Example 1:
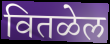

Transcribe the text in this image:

वितळेल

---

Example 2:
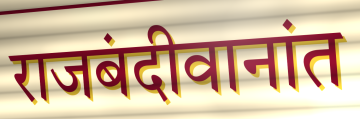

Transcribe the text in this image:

राजबंदीवानांत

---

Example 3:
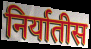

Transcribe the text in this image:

निर्यातीस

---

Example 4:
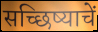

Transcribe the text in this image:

सच्छिष्याचें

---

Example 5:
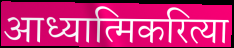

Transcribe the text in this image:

आध्यात्मिकरित्या